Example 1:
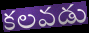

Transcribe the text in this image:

కలవడు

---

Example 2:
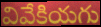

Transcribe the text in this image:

వివేకియగు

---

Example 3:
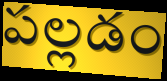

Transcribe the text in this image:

పల్లడం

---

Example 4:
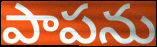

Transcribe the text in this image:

పాపను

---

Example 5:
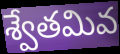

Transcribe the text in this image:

శ్వేతమివ